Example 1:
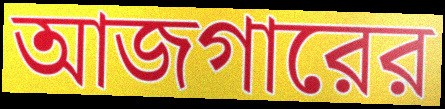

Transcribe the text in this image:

আজগারের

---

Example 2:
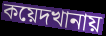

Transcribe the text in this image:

কয়েদখানায়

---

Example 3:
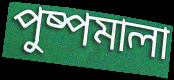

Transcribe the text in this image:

পুষ্পমালা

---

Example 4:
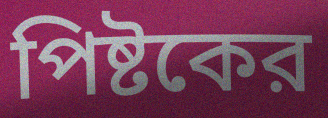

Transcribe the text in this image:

পিষ্টকের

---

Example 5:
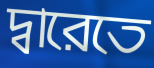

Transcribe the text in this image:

দ্বারেতে